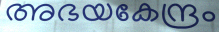
അഭയകേന്ദ്രം